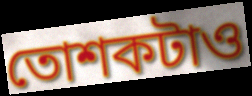
তোশকটাও